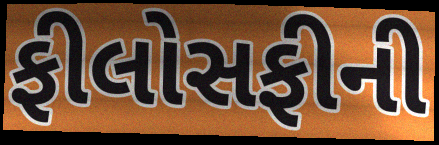
ફીલોસફીની